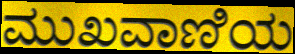
ಮುಖವಾಣಿಯ